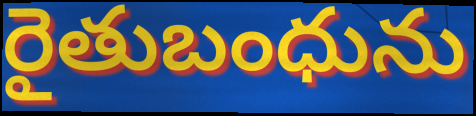
రైతుబంధును